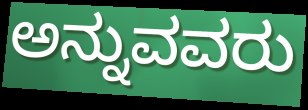
ಅನ್ನುವವರು